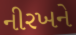
નીરખને